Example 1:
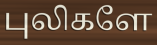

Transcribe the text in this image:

புலிகளே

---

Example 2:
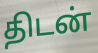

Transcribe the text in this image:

திடன்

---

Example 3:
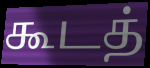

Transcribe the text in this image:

கூடத்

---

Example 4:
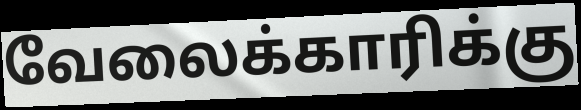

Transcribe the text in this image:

வேலைக்காரிக்கு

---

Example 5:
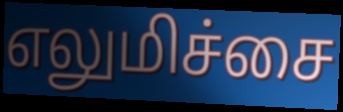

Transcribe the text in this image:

எலுமிச்சை